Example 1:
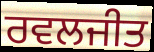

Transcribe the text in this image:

ਰਵਲਜੀਤ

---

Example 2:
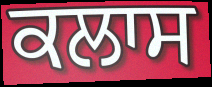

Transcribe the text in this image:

ਕਲਾਸ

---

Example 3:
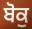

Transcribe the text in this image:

ਬੋਕੁ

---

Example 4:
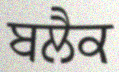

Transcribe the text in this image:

ਬਲੈਕ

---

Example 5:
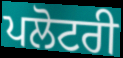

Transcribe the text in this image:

ਪਲੋਟਰੀ